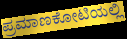
ಪ್ರಮಾಣಕೋಟಿಯಲ್ಲಿ